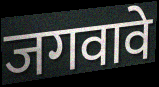
जगवावे